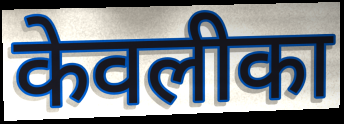
केवलीका